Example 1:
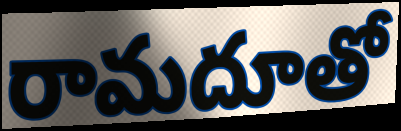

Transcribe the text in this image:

రామదూతో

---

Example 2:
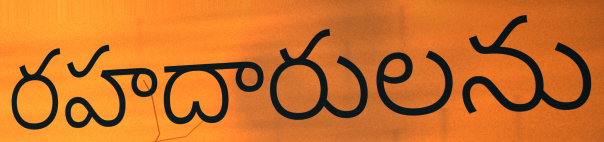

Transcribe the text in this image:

రహదారులను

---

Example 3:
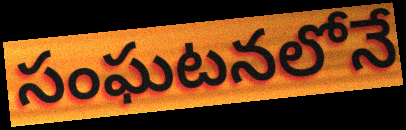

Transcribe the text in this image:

సంఘటనలోనే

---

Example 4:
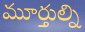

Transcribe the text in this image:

మూర్తుల్ని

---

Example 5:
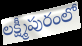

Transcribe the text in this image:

లక్ష్మీపురంలో